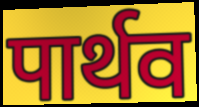
पार्थव